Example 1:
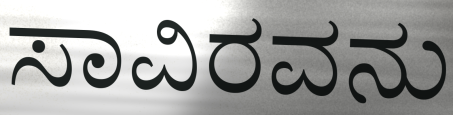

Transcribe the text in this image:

ಸಾವಿರವನು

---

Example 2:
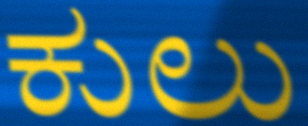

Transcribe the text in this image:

ಕುಲು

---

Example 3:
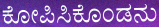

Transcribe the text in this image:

ಕೋಪಿಸಿಕೊಂಡನು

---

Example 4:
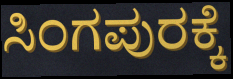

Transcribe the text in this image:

ಸಿಂಗಪುರಕ್ಕೆ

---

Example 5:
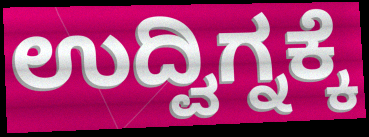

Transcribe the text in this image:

ಉದ್ವಿಗ್ನಕ್ಕೆ